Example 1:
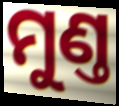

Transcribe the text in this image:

ମୁଣ୍ତ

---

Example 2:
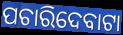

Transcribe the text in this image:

ପଚାରିଦେବାଟା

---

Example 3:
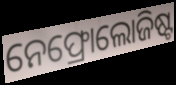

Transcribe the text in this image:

ନେଫ୍ରୋଲୋଜିଷ୍ଟ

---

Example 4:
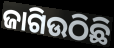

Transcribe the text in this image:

ଜାଗିଉଠିଛି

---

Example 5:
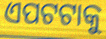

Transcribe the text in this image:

ଏପଟଟାକୁ